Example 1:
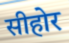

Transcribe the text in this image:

सीहोर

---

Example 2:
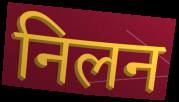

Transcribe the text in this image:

निलन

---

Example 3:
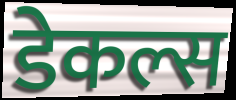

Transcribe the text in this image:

डेकल्स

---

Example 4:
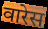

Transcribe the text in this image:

वारेस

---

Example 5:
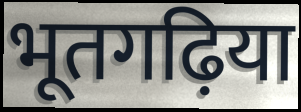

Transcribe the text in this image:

भूतगढ़िया